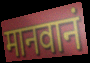
मानवानं